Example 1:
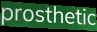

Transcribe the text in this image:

prosthetic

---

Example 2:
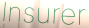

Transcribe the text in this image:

Insurer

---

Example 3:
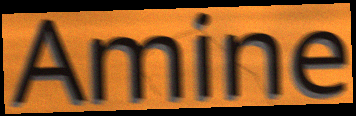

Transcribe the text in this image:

Amine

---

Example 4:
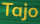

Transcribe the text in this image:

Tajo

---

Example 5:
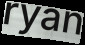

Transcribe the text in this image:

ryan